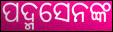
ପଦ୍ମସେନଙ୍କ